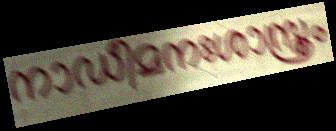
നാഡീമനഃശാസ്ത്രം